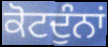
ਕੋਟਦੁੰਨਾਂ